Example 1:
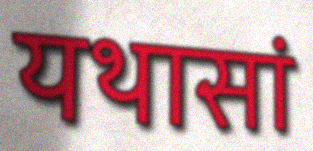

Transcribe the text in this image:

यथासां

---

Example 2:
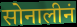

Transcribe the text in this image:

सोनालीनं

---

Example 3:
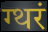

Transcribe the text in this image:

ग्थरं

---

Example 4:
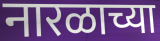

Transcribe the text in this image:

नारळाच्या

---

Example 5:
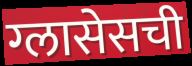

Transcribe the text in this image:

ग्लासेसची